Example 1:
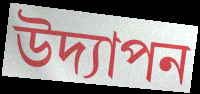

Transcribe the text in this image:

উদ্যাপন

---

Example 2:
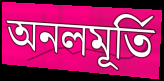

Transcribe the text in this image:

অনলমূর্তি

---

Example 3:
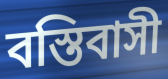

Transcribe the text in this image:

বস্তিবাসী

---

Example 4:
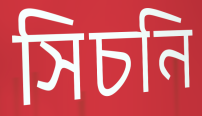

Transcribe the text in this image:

সিচনি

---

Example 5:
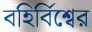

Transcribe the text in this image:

বহির্বিশ্বের